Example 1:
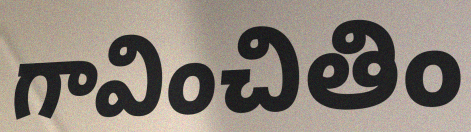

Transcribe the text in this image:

గావించితిం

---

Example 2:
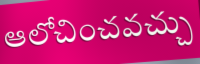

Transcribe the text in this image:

ఆలోచించవచ్చు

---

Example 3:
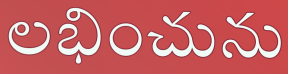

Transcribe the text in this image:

లభించును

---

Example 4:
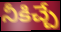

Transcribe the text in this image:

నీకిచ్చే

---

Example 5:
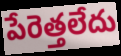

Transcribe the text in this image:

పేరెత్తలేదు